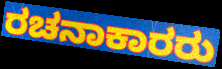
ರಚನಾಕಾರರು